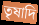
তৃষাদি